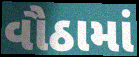
વૌઠામાં